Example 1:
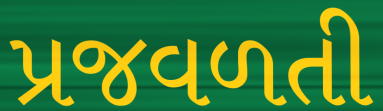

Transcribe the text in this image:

પ્રજવળતી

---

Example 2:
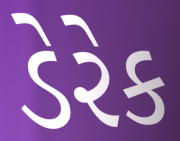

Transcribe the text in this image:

ડેરેક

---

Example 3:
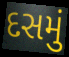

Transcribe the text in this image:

દસમું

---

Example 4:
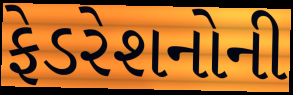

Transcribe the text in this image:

ફેડરેશનોની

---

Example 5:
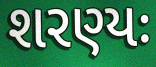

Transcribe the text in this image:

શરણ્યઃ